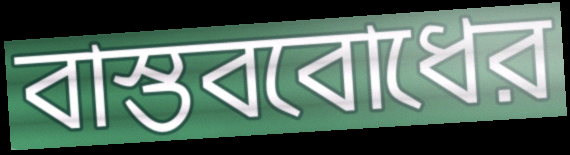
বাস্তববোধের